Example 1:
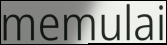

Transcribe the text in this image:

memulai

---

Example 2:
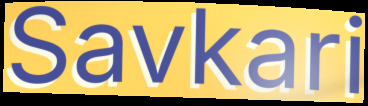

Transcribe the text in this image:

Savkari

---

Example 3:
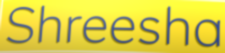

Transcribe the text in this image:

Shreesha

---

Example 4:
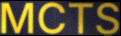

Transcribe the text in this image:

MCTS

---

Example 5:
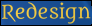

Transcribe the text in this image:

Redesign